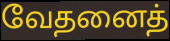
வேதனைத்